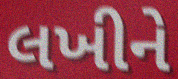
લખીને